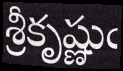
శ్రీకృష్ణుఁ